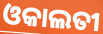
ଓକାଲତୀ